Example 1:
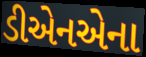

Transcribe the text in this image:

ડીએનએના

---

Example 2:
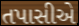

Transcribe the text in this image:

તપાસીએ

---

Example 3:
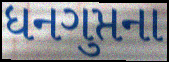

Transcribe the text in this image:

ધનગુપ્તના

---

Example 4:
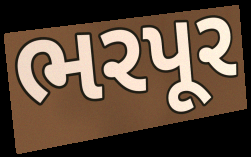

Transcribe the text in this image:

ભરપૂર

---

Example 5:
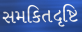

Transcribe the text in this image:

સમકિતદૃષ્ટિ